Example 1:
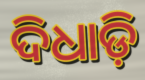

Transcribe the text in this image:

ଦିଧାଡ଼ି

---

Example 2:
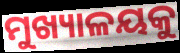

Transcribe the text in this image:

ମୁଖ୍ୟାଳୟକୁ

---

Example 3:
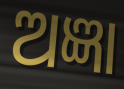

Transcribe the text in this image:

ଅଜ୍ଞା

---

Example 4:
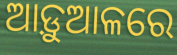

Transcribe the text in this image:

ଆଡ଼ୁଆଳରେ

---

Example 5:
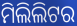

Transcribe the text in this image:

ମିଲିଲିଟର